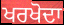
ਖਰਖੋਦਾ